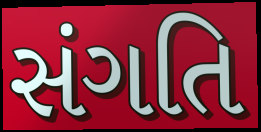
સંગતિ